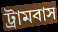
ট্রামবাস